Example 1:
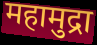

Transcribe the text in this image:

महामुद्रा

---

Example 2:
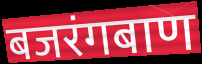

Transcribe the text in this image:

बजरंगबाण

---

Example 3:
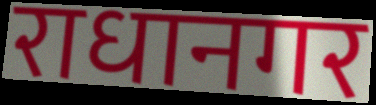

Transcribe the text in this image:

राधानगर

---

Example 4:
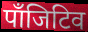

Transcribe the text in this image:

पाँजिटिव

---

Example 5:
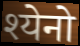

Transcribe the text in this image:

श्येनो